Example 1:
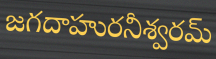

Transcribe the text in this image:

జగదాహురనీశ్వరమ్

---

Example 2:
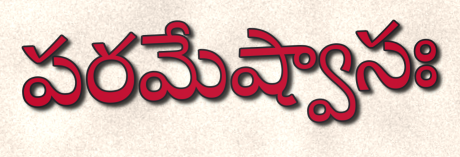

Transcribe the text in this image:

పరమేష్వాసః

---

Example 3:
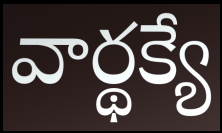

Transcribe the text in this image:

వార్థక్యే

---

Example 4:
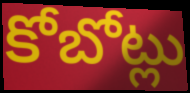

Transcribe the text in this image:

కోబోట్లు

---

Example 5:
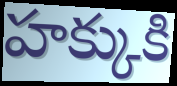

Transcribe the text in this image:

హక్కుకి